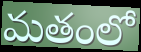
మతంలో